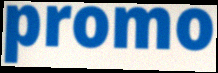
promo